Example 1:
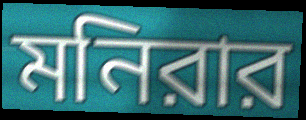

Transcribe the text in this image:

মনিরার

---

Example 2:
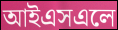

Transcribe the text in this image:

আইএসএলে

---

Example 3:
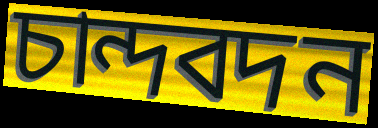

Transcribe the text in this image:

চান্দবদন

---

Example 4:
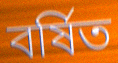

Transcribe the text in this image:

বর্ষিত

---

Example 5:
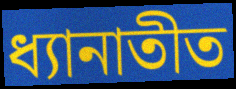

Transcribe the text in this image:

ধ্যানাতীত